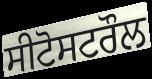
ਸੀਟੋਸਟਰੌਲ